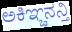
ಅಕಿಞ್ಚನನ್ತಿ